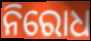
ନିରୋଧ